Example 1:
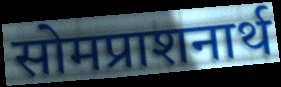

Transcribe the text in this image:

सोमप्राशनार्थ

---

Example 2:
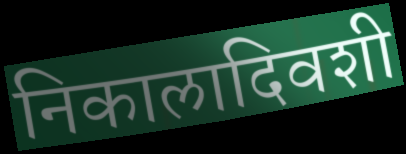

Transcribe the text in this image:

निकालादिवशी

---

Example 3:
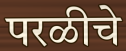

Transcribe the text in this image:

परळीचे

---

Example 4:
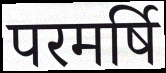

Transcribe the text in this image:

परमर्षि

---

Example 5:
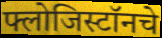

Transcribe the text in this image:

फ्लोजिस्टॉनचे